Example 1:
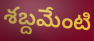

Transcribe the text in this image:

శబ్దమేంటి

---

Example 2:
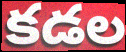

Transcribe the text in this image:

కడల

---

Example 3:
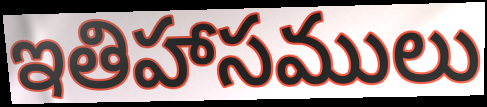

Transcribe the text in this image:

ఇతిహాసములు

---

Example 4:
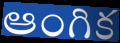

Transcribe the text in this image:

ఆంగిక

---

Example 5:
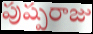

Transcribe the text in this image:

పుష్పరాజు